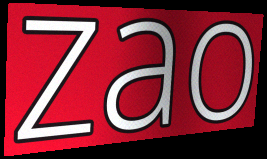
zao